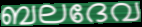
ബലദേവ